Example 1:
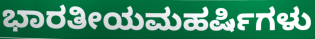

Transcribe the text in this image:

ಭಾರತೀಯಮಹರ್ಷಿಗಳು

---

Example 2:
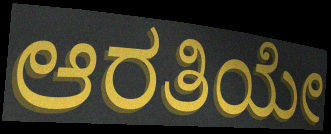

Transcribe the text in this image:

ಆರತಿಯೇ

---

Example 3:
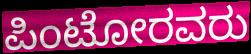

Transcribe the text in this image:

ಪಿಂಟೋರವರು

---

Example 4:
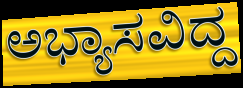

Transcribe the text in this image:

ಅಭ್ಯಾಸವಿದ್ದ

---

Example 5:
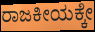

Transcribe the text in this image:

ರಾಜಕೀಯಕ್ಕೇ